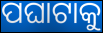
ପଘାଟାକୁ